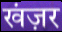
खंज़र